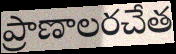
ప్రాణాలరచేత